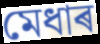
মেধাৰ